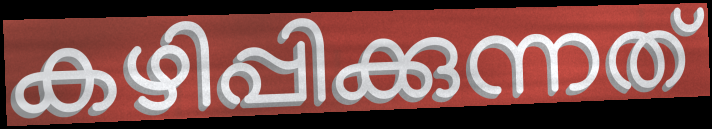
കഴിപ്പിക്കുന്നത്